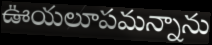
ఊయలూపమన్నాను